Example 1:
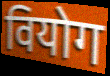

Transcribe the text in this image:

वियोग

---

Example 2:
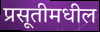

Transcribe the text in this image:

प्रसूतीमधील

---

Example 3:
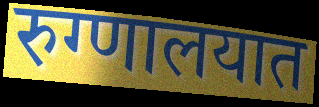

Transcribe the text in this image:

रुग्णालयात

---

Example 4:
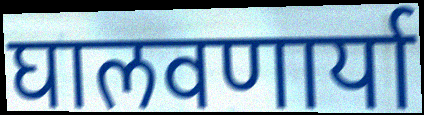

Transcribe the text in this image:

घालवणार्या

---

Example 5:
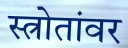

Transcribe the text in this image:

स्त्रोतांवर